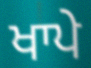
ਖਾਪੇ